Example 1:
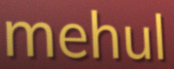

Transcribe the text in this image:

mehul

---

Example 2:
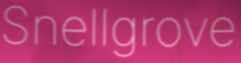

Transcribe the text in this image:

Snellgrove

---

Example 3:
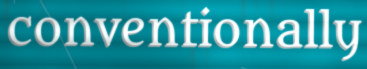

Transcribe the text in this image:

conventionally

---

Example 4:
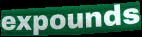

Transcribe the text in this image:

expounds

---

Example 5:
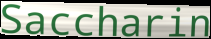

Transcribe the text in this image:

Saccharin